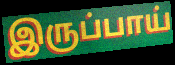
இருப்பாய்